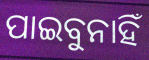
ପାଇବୁନାହିଁ